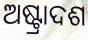
ଅଷ୍ଟ୍ରାଦଶ